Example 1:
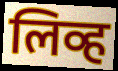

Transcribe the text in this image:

लिव्ह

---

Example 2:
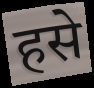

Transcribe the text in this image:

हसे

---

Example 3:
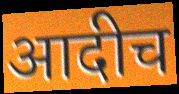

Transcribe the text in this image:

आदीच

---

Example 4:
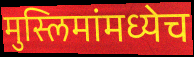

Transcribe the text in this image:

मुस्लिमांमध्येच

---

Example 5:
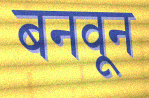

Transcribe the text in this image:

बनवून